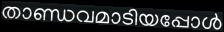
താണ്ഡവമാടിയപ്പോൾ